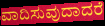
ವಾದಿಸುವುದಾದರೆ